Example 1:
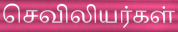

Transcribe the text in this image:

செவிலியர்கள்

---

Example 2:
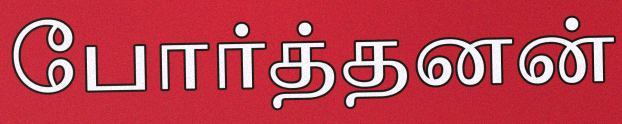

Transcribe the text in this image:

போர்த்தனன்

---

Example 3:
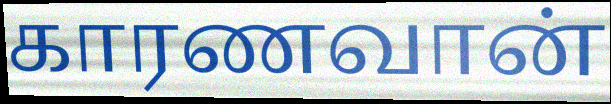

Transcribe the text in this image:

காரணவான்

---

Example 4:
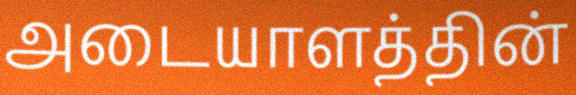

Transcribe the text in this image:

அடையாளத்தின்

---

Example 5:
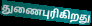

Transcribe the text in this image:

துணைபுரிகிறது